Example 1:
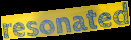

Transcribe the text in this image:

resonated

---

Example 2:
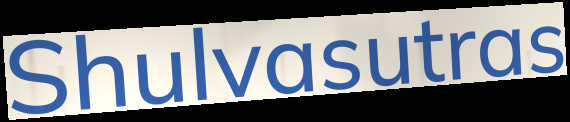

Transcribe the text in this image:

Shulvasutras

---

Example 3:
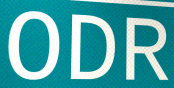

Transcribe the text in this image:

ODR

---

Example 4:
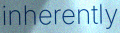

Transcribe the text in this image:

inherently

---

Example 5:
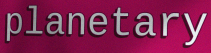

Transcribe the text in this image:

planetary